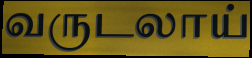
வருடலாய்